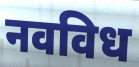
नवविध